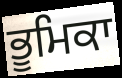
ਭੂਮਿਕਾ